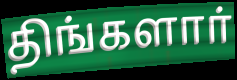
திங்களார்